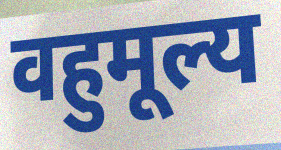
वहुमूल्य